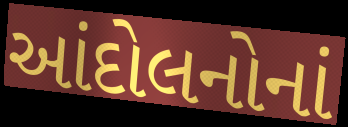
આંદોલનોનાં